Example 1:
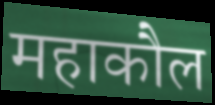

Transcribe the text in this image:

महाकौल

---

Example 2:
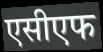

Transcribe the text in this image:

एसीएफ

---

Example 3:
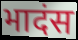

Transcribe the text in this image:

भादंस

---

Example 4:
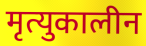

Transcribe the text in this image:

मृत्युकालीन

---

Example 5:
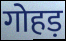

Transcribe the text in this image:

गोहड़